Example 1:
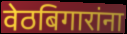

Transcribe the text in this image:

वेठबिगारांना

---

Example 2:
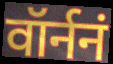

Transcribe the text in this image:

वॉर्ननं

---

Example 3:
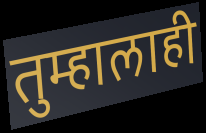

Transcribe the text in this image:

तुम्हालाही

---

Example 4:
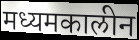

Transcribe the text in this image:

मध्यमकालीन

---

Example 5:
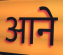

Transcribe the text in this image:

आने